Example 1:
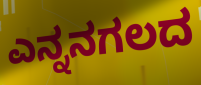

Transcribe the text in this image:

ಎನ್ನನಗಲದ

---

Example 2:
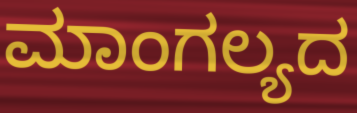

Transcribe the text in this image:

ಮಾಂಗಲ್ಯದ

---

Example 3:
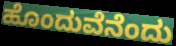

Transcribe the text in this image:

ಹೊಂದುವೆನೆಂದು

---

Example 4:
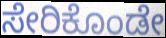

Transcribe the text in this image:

ಸೇರಿಕೊಂಡೇ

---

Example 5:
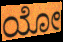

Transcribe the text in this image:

ಯೋ